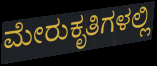
ಮೇರುಕೃತಿಗಳಲ್ಲಿ